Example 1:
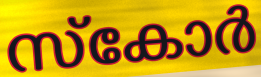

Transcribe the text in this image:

സ്‌കോർ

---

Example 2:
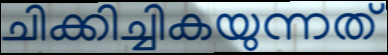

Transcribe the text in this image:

ചിക്കിച്ചികയുന്നത്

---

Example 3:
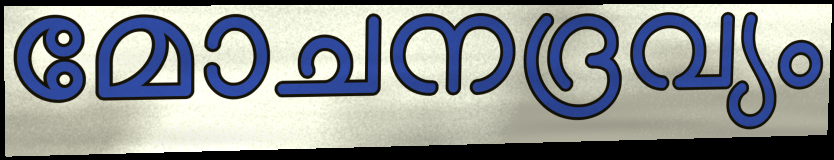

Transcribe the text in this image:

മോചനദ്രവ്യം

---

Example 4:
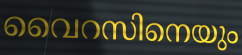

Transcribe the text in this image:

വൈറസിനെയും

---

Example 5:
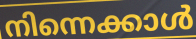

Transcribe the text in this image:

നിന്നെക്കാൾ